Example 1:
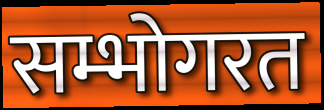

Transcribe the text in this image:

सम्भोगरत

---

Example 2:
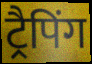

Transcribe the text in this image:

ट्रैपिंग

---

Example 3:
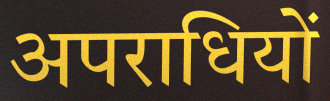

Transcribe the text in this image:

अपराधियों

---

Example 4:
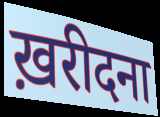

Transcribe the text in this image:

ख़रीदना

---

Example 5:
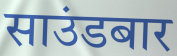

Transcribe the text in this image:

साउंडबार